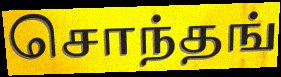
சொந்தங்